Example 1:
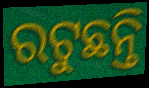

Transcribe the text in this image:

ରଟୁଛନ୍ତି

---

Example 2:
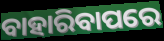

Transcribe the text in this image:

ବାହାରିବାପରେ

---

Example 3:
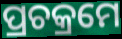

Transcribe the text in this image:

ପ୍ରଚକ୍ରମେ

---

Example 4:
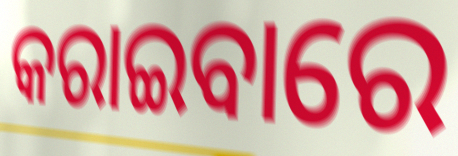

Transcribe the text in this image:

କରାଇବାରେ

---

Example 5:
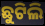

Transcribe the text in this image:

ଛୁଟିଲି